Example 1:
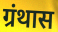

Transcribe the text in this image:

ग्रंथास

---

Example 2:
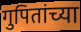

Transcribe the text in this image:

गुपितांच्या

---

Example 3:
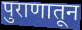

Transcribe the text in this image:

पुराणातून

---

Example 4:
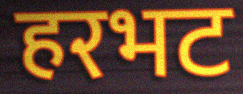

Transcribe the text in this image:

हरभट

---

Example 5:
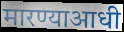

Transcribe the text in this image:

मारण्याआधी